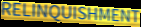
RELINQUISHMENT